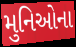
મુનિઓના